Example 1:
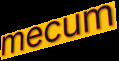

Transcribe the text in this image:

mecum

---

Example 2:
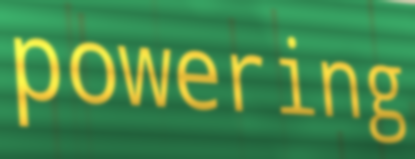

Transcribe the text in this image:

powering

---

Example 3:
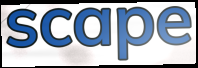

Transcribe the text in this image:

scape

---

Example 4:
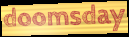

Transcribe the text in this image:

doomsday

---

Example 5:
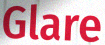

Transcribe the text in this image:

Glare